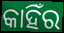
କାହିଁର